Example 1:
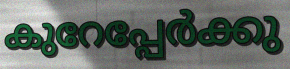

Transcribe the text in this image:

കുറേപ്പേർക്കു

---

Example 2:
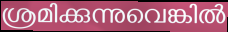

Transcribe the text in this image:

ശ്രമിക്കുന്നുവെങ്കിൽ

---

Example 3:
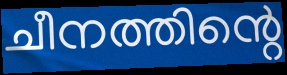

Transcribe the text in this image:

ചീനത്തിന്റെ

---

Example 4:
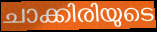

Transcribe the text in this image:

ചാക്കിരിയുടെ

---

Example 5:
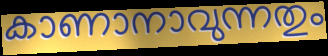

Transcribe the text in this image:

കാണാനാവുന്നതും